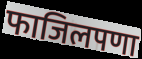
फाजिलपणा